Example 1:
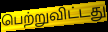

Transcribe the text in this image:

பெற்றுவிட்டது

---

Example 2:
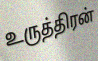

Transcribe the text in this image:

உருத்திரன்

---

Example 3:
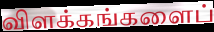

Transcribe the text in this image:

விளக்கங்களைப்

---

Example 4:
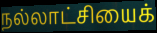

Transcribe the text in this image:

நல்லாட்சியைக்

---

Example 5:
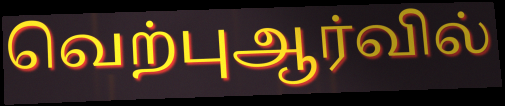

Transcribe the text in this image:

வெற்புஆர்வில்